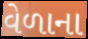
વેળાના